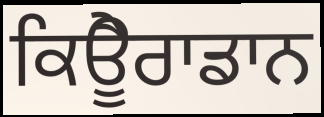
ਕਿਊੈਰਾਡਾਨ